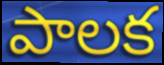
పాలక